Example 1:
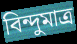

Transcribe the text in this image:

বিন্দুমাত্র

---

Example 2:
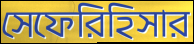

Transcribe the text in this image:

সেফেরিহিসার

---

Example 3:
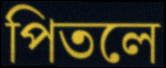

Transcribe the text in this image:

পিতলে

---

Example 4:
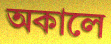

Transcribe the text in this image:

অকালে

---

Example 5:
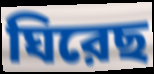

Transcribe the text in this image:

ঘিরেছ